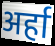
अर्हा